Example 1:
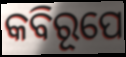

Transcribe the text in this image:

କବିରୂପେ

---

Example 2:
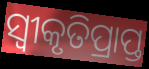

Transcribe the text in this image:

ସ୍ବୀକୃତିପ୍ରାପ୍ତ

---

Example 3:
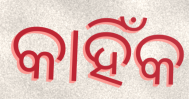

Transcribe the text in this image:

କାହିଁକ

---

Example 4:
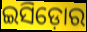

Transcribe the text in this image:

ଇସିଡ଼ୋର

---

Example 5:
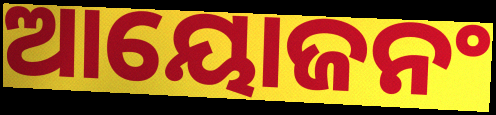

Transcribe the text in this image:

ଆୟୋଜନଂ